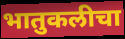
भातुकलीचा